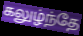
கலுழ்ந்தே